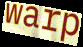
warp